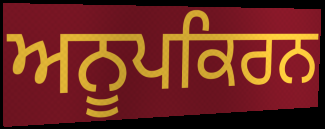
ਅਨੂਪਕਿਰਨ